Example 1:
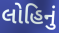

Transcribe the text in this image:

લોહિનું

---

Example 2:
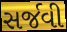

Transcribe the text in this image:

સર્જવી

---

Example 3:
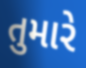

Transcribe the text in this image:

તુમારે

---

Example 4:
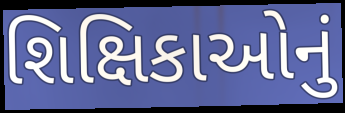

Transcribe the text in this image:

શિક્ષિકાઓનું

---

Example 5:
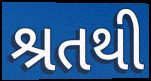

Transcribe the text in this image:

શ્રતથી